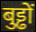
बुड्ढों